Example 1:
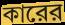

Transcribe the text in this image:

কারের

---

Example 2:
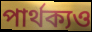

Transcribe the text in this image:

পার্থক্যও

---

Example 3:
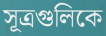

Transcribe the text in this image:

সূত্রগুলিকে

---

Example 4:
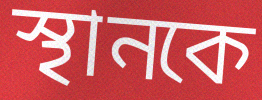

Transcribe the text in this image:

স্থানকে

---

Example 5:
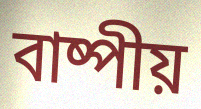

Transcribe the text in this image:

বাষ্পীয়